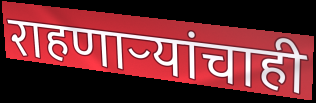
राहणाऱ्यांचाही